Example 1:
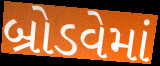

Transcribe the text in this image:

બ્રોડવેમાં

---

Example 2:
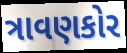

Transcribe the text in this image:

ત્રાવણકોર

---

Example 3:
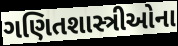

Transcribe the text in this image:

ગણિતશાસ્ત્રીઓના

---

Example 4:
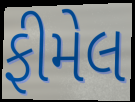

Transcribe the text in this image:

ફીમેલ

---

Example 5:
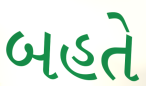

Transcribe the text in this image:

બહતે